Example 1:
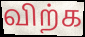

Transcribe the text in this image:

விற்க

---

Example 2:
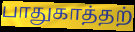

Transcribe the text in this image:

பாதுகாத்தற்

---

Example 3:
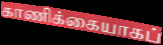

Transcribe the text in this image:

காணிக்கையாகப்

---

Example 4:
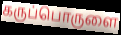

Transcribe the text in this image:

கருப்பொருளை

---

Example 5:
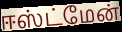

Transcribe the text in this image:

ஈஸ்ட்மேன்